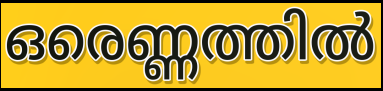
ഒരെണ്ണത്തിൽ